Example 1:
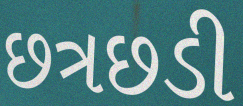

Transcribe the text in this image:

છત્રછડી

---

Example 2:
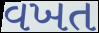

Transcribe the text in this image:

વખત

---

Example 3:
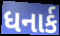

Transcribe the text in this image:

ધનાર્ક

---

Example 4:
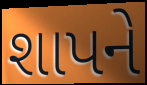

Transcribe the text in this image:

શાપને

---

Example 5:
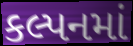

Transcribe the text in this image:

કલ્પનમાં